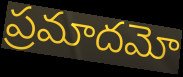
ప్రమాదమో